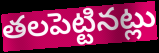
తలపెట్టినట్లు